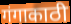
गंगाकाठी